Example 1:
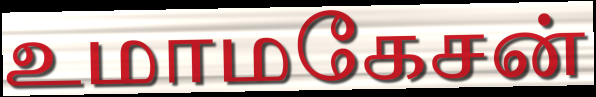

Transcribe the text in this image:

உமாமகேசன்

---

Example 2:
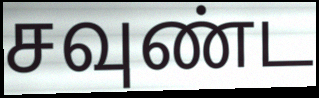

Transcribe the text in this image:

சவுண்ட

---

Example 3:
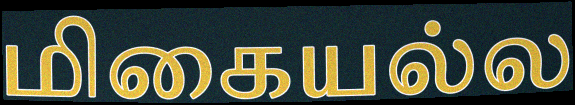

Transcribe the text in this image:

மிகையல்ல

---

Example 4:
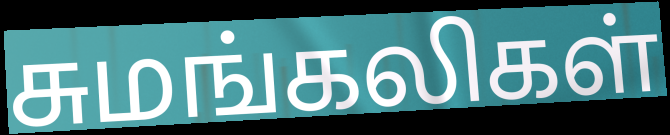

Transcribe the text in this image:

சுமங்கலிகள்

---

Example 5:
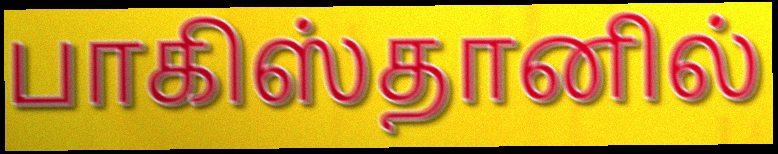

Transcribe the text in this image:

பாகிஸ்தானில்